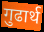
गुढार्थ